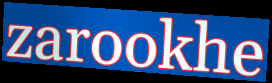
zarookhe